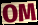
OM